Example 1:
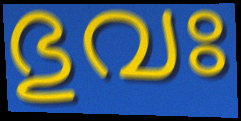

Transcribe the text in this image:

ഭുവഃ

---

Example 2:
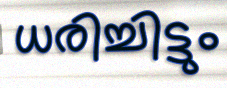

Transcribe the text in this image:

ധരിച്ചിട്ടും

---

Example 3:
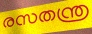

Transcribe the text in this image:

രസതന്ത്ര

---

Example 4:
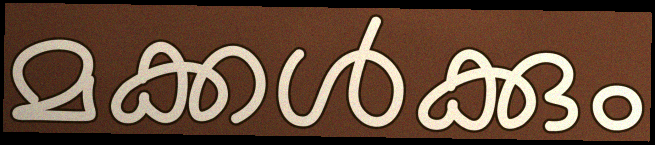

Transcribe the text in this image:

മക്കൾക്കും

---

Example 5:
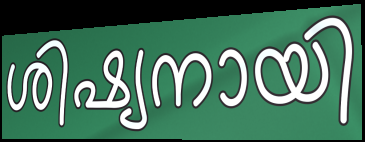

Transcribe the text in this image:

ശിഷ്യനായി